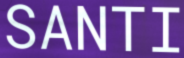
SANTI